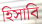
হিসাবি